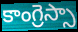
కాంగ్రెస్సా